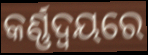
କର୍ଣ୍ଣଦ୍ୱୟରେ